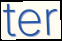
ter